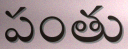
పంతు